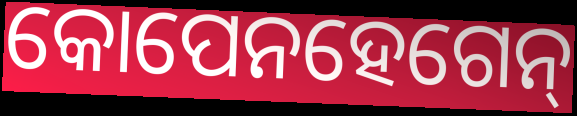
କୋପେନହେଗେନ୍